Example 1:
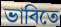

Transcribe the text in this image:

ভাবিতে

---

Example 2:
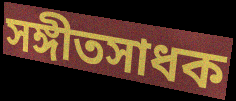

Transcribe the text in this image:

সঙ্গীতসাধক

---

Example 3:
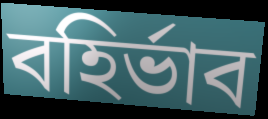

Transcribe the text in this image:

বহির্ভাব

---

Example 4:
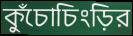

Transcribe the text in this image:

কুঁচোচিংড়ির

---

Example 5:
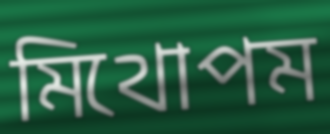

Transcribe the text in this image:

মিথোপম